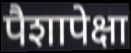
पैशापेक्षा